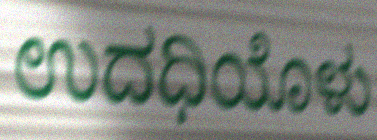
ಉದಧಿಯೊಳು